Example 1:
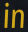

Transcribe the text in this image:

in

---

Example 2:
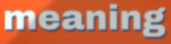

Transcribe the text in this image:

meaning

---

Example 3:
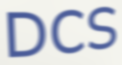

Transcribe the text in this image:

DCS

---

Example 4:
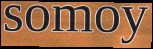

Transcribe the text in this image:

somoy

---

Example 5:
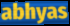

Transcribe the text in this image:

abhyas